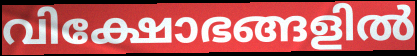
വിക്ഷോഭങ്ങളിൽ